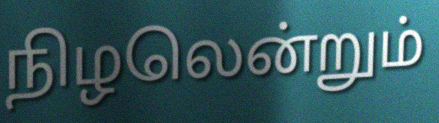
நிழலென்றும்